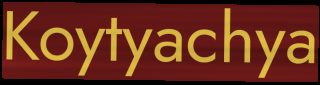
Koytyachya